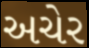
અચેર